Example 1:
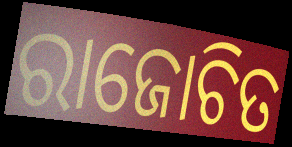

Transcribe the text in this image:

ରାଜୋଚିତ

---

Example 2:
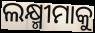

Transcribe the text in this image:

ଲକ୍ଷ୍ମୀମାକୁ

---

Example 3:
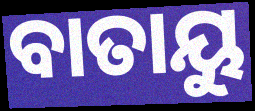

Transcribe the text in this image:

ବାତାୟୁ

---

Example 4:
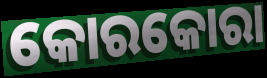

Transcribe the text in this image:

କୋରକୋରା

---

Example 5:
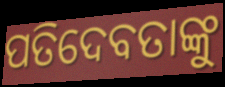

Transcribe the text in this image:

ପତିଦେବତାଙ୍କୁ